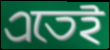
এতেই